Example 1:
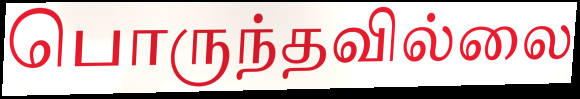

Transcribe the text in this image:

பொருந்தவில்லை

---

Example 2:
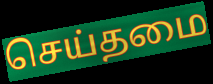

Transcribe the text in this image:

செய்தமை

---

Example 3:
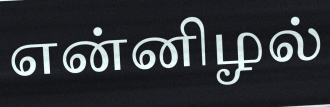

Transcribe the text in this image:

என்னிழல்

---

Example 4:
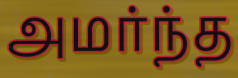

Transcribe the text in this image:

அமர்ந்த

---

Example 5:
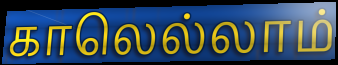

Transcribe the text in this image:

காலெல்லாம்